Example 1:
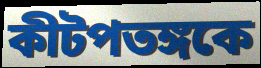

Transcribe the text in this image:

কীটপতঙ্গকে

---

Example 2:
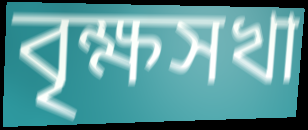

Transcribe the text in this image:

বৃক্ষসখা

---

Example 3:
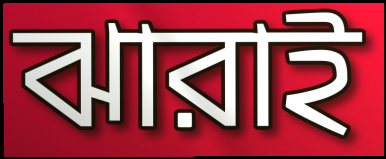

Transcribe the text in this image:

ঝারাই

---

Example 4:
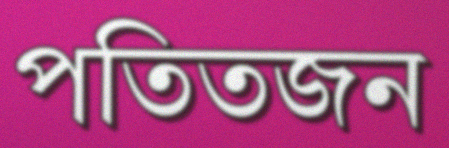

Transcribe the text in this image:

পতিতজন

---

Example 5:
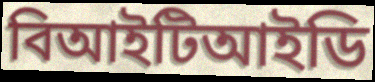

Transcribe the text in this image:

বিআইটিআইডি